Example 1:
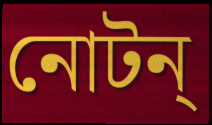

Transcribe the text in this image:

নোটন্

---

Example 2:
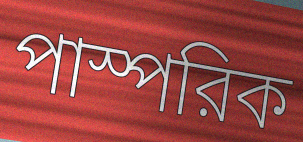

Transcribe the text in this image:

পাস্পরিক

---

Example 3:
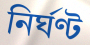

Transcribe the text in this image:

নির্ঘণ্ট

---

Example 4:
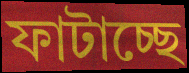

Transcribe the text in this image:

ফাটাচ্ছে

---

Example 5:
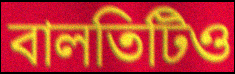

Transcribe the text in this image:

বালতিটিও